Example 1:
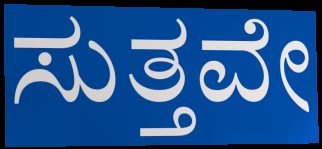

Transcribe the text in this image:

ಸುತ್ತವೇ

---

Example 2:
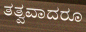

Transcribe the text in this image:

ತತ್ವವಾದರೂ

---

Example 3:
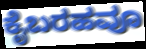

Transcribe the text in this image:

ಕೈಬರಹವೂ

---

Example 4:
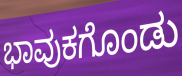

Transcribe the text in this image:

ಭಾವುಕಗೊಂಡು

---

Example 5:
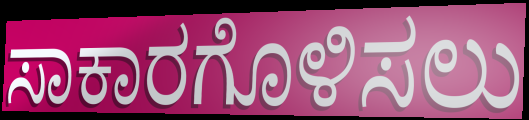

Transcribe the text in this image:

ಸಾಕಾರಗೊಳಿಸಲು